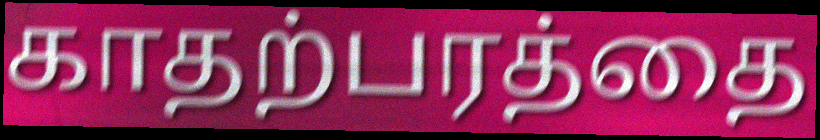
காதற்பரத்தை